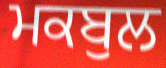
ਮਕਬੁਲ